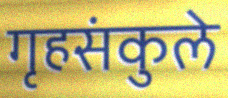
गृहसंकुले